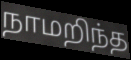
நாமறிந்த